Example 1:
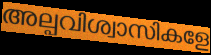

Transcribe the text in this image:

അല്പവിശ്വാസികളേ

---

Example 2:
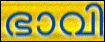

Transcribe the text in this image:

ഭാവി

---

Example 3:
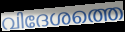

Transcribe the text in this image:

വിദേശത്തെ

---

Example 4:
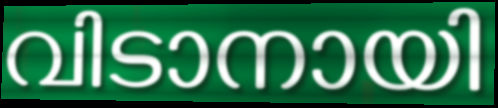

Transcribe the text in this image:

വിടാനായി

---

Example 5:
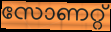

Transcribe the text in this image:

സോണറ്റ്